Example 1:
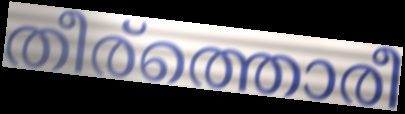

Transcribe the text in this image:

തീര്ത്തൊരീ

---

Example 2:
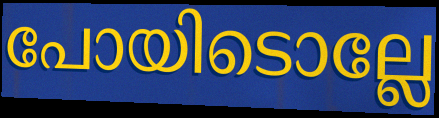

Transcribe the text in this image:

പോയിടൊല്ലേ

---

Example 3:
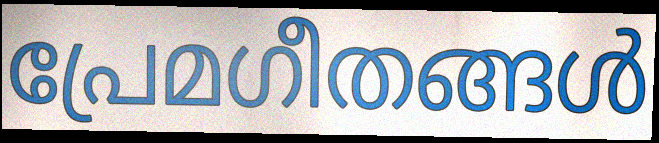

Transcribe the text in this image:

പ്രേമഗീതങ്ങൾ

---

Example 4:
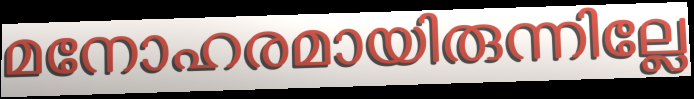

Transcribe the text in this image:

മനോഹരമായിരുന്നില്ലേ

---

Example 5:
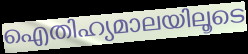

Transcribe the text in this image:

ഐതിഹ്യമാലയിലൂടെ